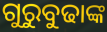
ଗୁରୁବୁଢାଙ୍କ